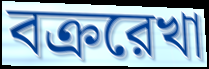
বক্ররেখা